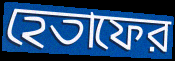
হেতাফের